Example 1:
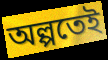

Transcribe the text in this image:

অল্পতেই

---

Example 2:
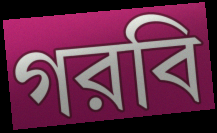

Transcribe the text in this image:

গরবি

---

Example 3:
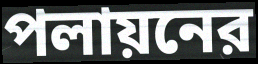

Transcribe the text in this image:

পলায়নের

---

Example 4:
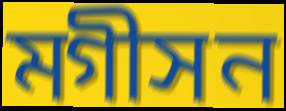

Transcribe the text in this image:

মগীসন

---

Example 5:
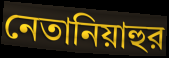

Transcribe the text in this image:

নেতানিয়াহুর